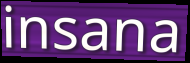
insana